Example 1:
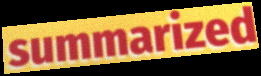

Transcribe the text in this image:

summarized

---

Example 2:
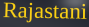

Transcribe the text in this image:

Rajastani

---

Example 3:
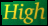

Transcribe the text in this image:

High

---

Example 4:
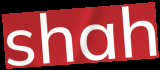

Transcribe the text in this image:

shah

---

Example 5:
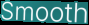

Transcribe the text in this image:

Smooth